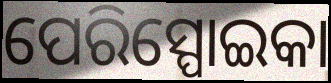
ପେରିସ୍ପୋଇକା